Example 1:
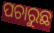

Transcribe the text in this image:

ପଚାରୁଛ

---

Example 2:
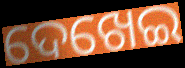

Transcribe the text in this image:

ଦେଖେଇ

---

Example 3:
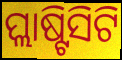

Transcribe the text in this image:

ପ୍ଲାଷ୍ଟିସିଟି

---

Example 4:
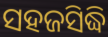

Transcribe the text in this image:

ସହଜସିଦ୍ଧି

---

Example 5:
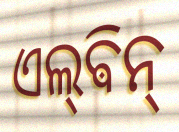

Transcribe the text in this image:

ଏଲ୍‌ଵିନ୍